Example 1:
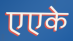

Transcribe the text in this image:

एएके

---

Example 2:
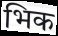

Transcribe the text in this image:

भिक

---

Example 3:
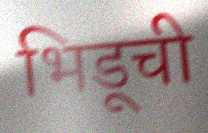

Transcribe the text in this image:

भिडूची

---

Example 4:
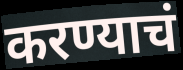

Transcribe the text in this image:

करण्याचं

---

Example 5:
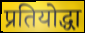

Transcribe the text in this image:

प्रतियोद्धा